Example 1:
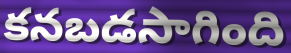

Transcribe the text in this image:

కనబడసాగింది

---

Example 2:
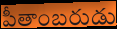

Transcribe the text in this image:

పీతాంబరుడు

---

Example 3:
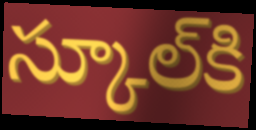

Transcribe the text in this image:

స్కూల్‌కి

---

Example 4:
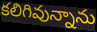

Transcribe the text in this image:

కలిగివున్నాను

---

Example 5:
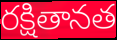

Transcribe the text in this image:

రక్షితానత